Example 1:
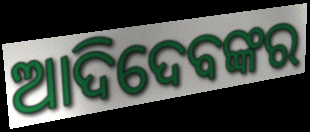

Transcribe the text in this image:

ଆଦିଦେବଙ୍କର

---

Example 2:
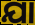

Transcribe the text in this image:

ଯା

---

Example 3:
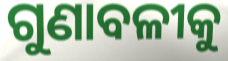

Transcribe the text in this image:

ଗୁଣାବଳୀକୁ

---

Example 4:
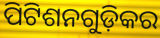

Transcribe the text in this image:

ପିଟିଶନଗୁଡ଼ିକର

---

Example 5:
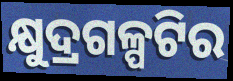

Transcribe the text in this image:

କ୍ଷୁଦ୍ରଗଳ୍ପଟିର